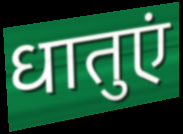
धातुएं